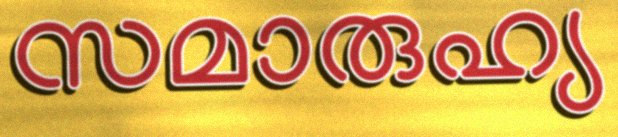
സമാരുഹ്യ